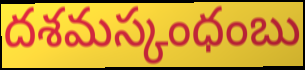
దశమస్కంధంబు